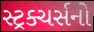
સ્ટ્રક્ચર્સનો